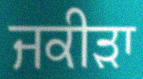
ਜਕੀੜਾ